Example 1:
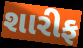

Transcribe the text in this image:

શારીફ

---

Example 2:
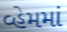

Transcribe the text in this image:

વ્હેમમાં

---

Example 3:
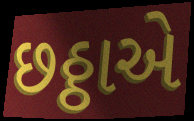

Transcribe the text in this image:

છઠ્ઠાએ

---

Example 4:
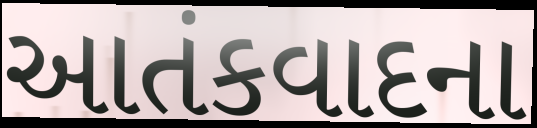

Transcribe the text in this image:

આતંકવાદના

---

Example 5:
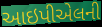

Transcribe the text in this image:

આઇપીએલની